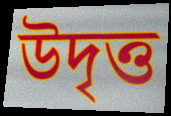
উদৃত্ত